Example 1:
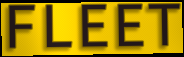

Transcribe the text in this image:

FLEET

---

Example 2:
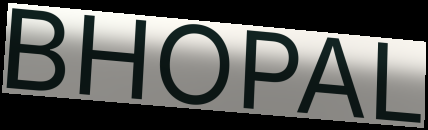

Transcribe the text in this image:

BHOPAL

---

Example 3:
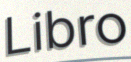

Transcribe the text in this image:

Libro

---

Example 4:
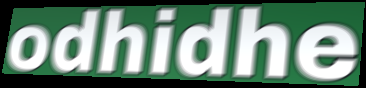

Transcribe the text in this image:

odhidhe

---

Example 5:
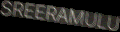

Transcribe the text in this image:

SREERAMULU